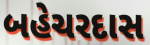
બહેચરદાસ